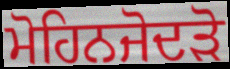
ਮੋਹਿਨਜੋਦੜੋ